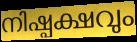
നിഷ്പക്ഷവും